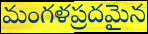
మంగళప్రదమైన